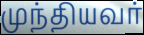
முந்தியவர்